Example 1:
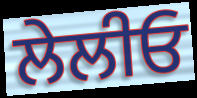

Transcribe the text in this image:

ਲੇਲੀਓ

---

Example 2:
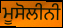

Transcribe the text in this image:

ਮੂਸੋਲੀਨੀ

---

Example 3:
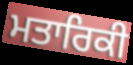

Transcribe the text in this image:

ਮਤਾਰਿਕੀ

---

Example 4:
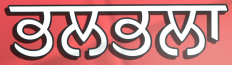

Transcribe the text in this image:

ਭਲਭਲਾ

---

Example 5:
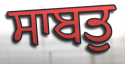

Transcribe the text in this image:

ਸਾਬਤੁ